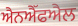
ਐਨਐੱਫਐਲ